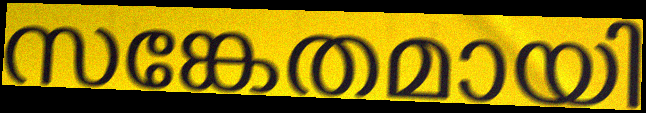
സങ്കേതമായി